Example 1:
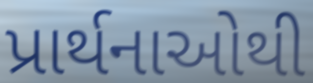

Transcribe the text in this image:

પ્રાર્થનાઓથી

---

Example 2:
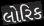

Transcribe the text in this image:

લોરિક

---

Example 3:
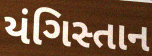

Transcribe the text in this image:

યંગિસ્તાન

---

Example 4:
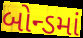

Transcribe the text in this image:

બોન્ડમાં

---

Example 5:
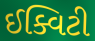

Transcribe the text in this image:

ઈક્વિટી